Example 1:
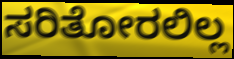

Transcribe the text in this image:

ಸರಿತೋರಲಿಲ್ಲ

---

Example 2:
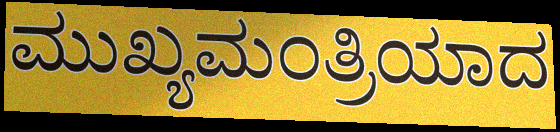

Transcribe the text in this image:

ಮುಖ್ಯಮಂತ್ರಿಯಾದ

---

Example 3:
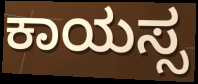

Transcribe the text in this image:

ಕಾಯಸ್ಸ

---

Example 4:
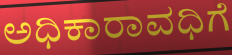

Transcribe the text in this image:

ಅಧಿಕಾರಾವಧಿಗೆ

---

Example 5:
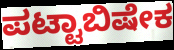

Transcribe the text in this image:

ಪಟ್ಟಾಬಿಷೇಕ